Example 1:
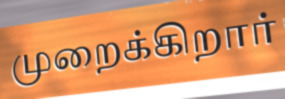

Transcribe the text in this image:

முறைக்கிறார்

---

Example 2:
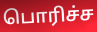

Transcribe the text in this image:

பொரிச்ச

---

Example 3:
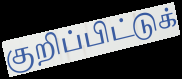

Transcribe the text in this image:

குறிப்பிட்டுக்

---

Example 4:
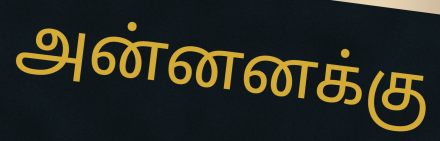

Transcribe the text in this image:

அன்னனக்கு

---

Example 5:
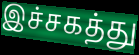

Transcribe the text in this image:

இச்சகத்து